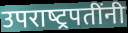
उपराष्ट्रपतींनी